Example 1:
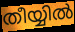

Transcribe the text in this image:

തീയ്യിൽ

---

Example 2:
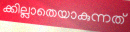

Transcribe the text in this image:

ക്കില്ലാതെയാകുന്നത്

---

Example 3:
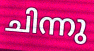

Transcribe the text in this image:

ചിന്നു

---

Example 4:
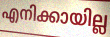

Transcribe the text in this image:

എനിക്കായില്ല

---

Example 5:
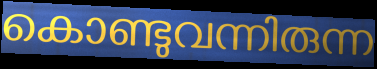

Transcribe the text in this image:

കൊണ്ടുവന്നിരുന്ന